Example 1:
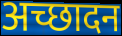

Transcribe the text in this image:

अच्छादन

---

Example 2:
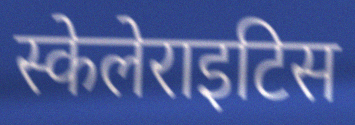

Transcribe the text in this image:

स्केलेराइटिस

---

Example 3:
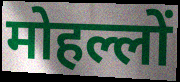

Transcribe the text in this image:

मोहल्लों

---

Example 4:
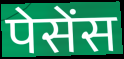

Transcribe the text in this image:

पेसेंस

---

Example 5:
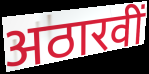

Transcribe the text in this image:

अठारवीं